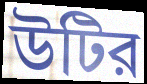
উটির